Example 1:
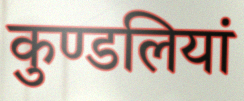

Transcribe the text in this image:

कुण्डलियां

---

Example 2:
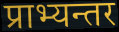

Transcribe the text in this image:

प्राभ्यन्तर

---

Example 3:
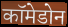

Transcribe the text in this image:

कॉमेडोन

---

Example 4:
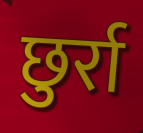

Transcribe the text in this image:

छुर्रा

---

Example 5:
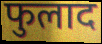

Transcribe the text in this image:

फुलाद